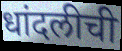
धांदलीची